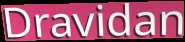
Dravidan